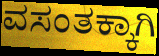
ವಸಂತಕ್ಕಾಗಿ